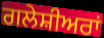
ਗਲੇਸ਼ੀਅਰਾਂ